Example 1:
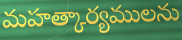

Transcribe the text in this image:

మహత్కార్యములను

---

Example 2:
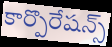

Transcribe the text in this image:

కార్పొరేషన్స్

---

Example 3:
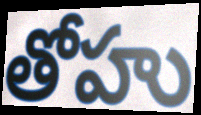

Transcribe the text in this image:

తోహు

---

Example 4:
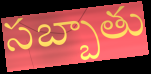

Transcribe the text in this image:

సబ్బాతు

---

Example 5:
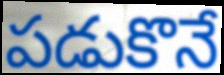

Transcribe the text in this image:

పడుకొనే